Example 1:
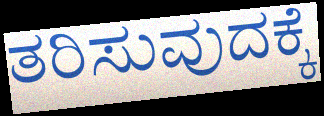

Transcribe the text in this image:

ತರಿಸುವುದಕ್ಕೆ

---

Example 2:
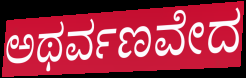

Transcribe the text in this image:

ಅಥರ್ವಣವೇದ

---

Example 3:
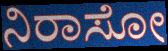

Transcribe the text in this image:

ನಿರಾಸೋ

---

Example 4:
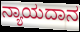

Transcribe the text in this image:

ನ್ಯಾಯದಾನ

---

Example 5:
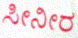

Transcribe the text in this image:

ಸೀನೀರ